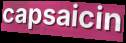
capsaicin